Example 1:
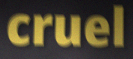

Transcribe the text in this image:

cruel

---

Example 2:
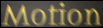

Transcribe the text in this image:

Motion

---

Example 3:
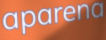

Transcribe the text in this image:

aparena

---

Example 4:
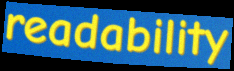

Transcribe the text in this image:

readability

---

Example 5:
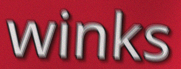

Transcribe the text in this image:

winks